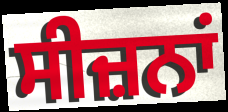
ਸੀਜ਼ਨਾਂ